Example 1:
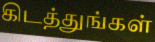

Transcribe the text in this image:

கிடத்துங்கள்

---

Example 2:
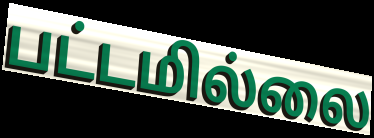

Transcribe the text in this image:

பட்டமில்லை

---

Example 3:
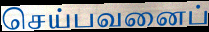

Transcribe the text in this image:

செய்பவனைப்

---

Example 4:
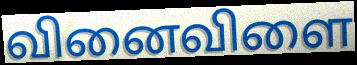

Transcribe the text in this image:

வினைவிளை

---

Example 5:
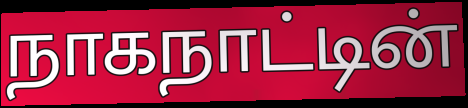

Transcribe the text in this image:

நாகநாட்டின்